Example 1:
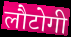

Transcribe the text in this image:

लौटोगी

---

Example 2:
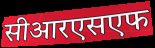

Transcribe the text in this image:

सीआरएसएफ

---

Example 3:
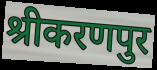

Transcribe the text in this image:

श्रीकरणपुर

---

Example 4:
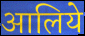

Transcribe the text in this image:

आलिये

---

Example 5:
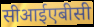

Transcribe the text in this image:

सीआईएबीसी